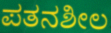
ಪತನಶೀಲ